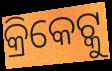
କ୍ରିକେଟ୍କୁ